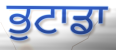
ਭੁਟਾਡਾ